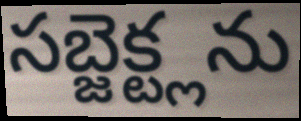
సబ్జెక్ట్లను